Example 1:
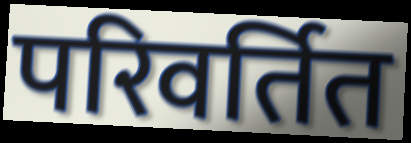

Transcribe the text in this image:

परिवर्तित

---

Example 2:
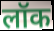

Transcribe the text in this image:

लॉक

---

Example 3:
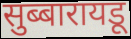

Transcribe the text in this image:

सुब्बारायडू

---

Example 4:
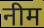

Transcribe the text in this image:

नीम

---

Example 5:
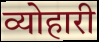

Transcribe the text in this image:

व्योहारी